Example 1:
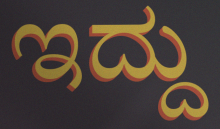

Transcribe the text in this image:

ಇದ್ದು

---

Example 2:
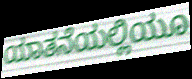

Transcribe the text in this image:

ಯಾತನೆಯಲ್ಲಿಯೂ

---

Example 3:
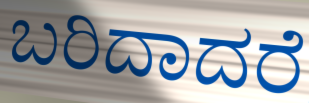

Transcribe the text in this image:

ಬರಿದಾದರೆ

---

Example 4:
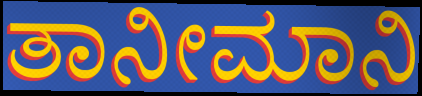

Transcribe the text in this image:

ತಾನೀಮಾನಿ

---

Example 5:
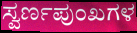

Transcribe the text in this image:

ಸ್ವರ್ಣಪುಂಖಗಳ